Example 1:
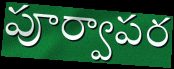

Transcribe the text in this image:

పూర్వాపర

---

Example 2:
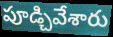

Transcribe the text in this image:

పూడ్చివేశారు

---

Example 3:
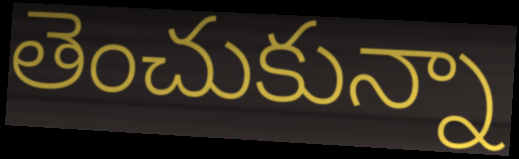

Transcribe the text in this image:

తెంచుకున్నా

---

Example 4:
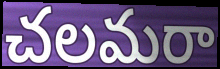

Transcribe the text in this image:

చలమరా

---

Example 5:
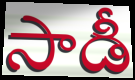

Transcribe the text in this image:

సాడీ